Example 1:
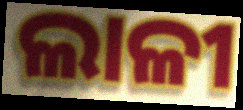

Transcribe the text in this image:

ଲାଳୀ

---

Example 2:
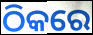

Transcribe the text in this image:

ଠିକରେ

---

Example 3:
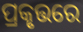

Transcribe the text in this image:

ପ୍ରକୃତ୍ତରେ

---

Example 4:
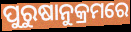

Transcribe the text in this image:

ପୁରୁଷାନୁକ୍ରମରେ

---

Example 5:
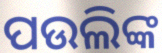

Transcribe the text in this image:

ପଉଲିଙ୍କ